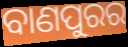
ବାଣପୁରର